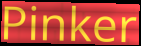
Pinker